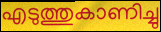
എടുത്തുകാണിച്ചു